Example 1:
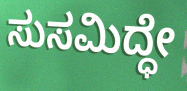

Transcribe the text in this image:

ಸುಸಮಿದ್ಧೇ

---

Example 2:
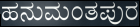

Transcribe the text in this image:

ಹನುಮಂತಪುರ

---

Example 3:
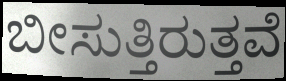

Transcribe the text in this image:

ಬೀಸುತ್ತಿರುತ್ತವೆ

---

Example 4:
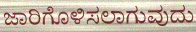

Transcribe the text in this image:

ಜಾರಿಗೊಳಿಸಲಾಗುವುದು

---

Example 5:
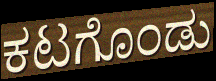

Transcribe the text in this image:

ಕಟಗೊಂಡು